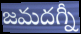
జమదగ్నీ